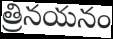
త్రినయనం